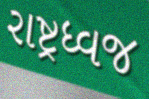
રાષ્ટ્રધ્વજ